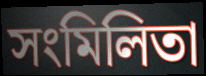
সংমিলিতা